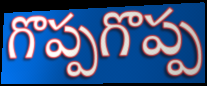
గొప్పగొప్ప